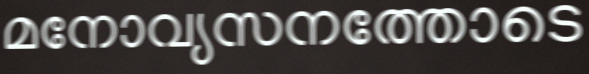
മനോവ്യസനത്തോടെ